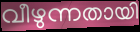
വീഴുന്നതായി